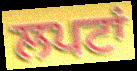
ਲਪਟਾਂ